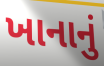
ખાનાનું